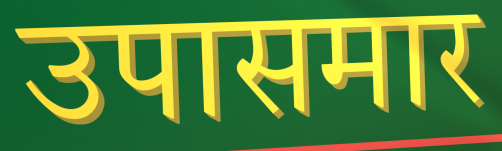
उपासमार